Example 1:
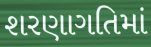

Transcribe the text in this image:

શરણાગતિમાં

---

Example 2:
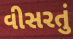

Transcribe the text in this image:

વીસરતું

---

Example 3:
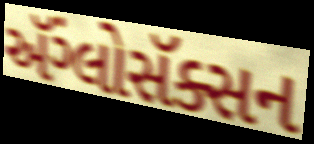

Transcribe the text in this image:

ઍંગ્લોસૅક્સન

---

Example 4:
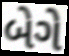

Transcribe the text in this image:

બેગે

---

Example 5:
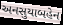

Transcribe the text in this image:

અનસુયાબહેન